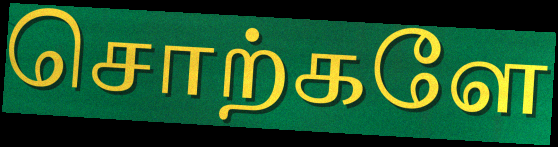
சொற்களே